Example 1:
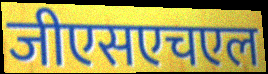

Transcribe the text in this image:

जीएसएचएल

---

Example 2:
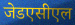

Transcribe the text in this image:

जेडएसीएल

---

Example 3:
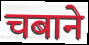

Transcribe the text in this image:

चबाने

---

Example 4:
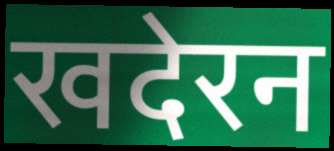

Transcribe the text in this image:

खदेरन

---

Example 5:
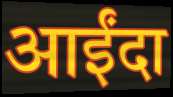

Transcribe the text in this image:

आईंदा